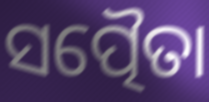
ସତ୍ପୈତା